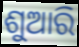
ଶୁଆରି